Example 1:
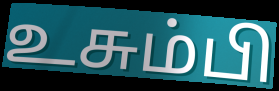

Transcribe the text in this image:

உசும்பி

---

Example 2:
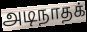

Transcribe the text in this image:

அடிநாதக்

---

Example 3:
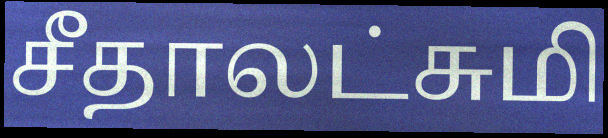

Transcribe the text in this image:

சீதாலட்சுமி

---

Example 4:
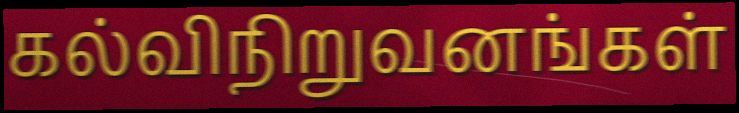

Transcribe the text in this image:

கல்விநிறுவனங்கள்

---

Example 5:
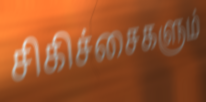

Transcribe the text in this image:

சிகிச்சைகளும்